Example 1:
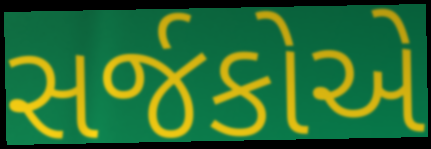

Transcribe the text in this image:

સર્જકોએ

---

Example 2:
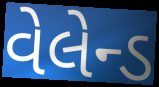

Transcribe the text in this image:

વેલેન્ડ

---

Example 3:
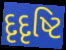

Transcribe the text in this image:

દૃદૃષ્ટિ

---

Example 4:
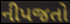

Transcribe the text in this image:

નીપજતો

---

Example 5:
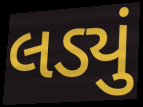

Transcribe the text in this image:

લડ્યું